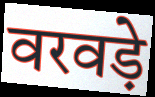
वरवड़े